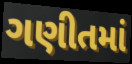
ગણીતમાં